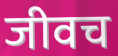
जीवच